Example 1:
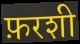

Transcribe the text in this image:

फ़रशी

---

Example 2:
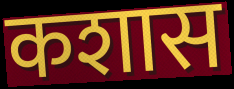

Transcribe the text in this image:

कशास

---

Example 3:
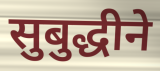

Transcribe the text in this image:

सुबुद्धीने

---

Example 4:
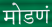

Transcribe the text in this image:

मोडणं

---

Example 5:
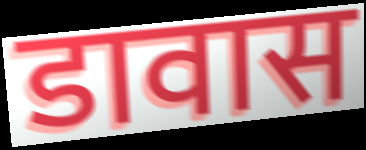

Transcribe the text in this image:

डावास